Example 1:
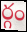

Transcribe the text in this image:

ర్గం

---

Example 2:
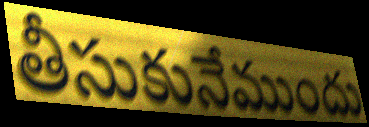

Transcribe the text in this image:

తీసుకునేముందు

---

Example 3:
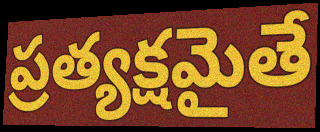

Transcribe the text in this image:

ప్రత్యక్షమైతే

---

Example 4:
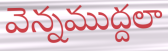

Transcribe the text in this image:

వెన్నముద్దలా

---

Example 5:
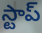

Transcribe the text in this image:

స్టాప్